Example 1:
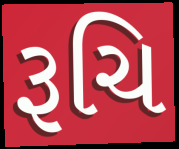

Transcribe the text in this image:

રૂચિ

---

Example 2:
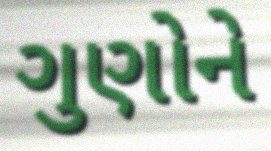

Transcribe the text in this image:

ગુણોને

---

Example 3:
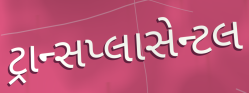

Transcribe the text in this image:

ટ્રાન્સપ્લાસેન્ટલ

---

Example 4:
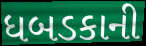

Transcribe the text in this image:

ધબડકાની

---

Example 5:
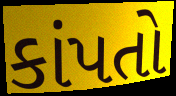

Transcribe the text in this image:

કાંપતો